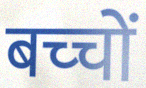
बच्‍चों